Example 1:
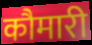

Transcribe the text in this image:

कौमारी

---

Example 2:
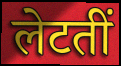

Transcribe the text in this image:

लेटतीं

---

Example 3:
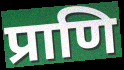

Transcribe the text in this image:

प्राणि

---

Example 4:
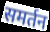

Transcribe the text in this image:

समर्तन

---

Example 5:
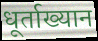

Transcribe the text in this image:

धूर्ताख्यान